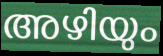
അഴിയും